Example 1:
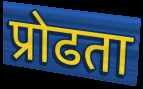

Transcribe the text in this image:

प्रोढता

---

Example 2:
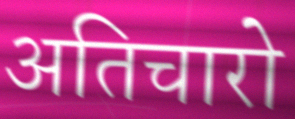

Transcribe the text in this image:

अतिचारो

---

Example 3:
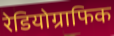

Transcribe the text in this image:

रेडियोग्राफिक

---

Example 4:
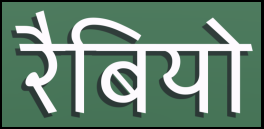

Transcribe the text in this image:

रैबियो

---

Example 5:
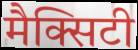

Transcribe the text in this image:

मैक्सिटी